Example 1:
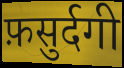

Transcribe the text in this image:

फ़सुर्दगी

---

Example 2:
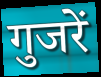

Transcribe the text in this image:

गुजरें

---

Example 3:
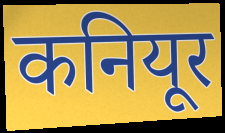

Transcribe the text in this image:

कनियूर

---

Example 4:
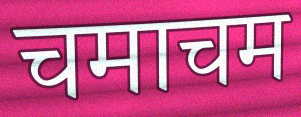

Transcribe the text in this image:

चमाचम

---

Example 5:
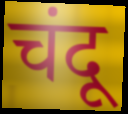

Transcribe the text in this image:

चंदू